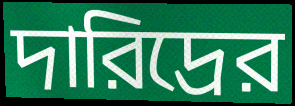
দারিদ্রের